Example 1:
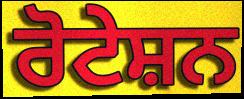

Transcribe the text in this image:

ਰੋਟੇਸ਼ਨ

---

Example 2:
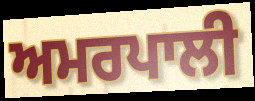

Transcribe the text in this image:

ਅਮਰਪਾਲੀ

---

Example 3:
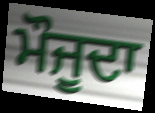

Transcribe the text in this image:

ਮੌਜੂਦਾ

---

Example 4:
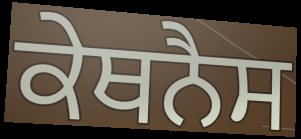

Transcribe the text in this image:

ਕੇਥਨੈਸ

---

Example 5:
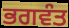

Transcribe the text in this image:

ਭਗਵੰਤ